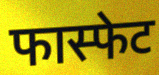
फास्फेट